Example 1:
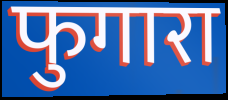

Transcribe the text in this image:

फुगारा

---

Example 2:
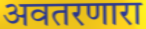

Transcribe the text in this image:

अवतरणारा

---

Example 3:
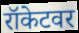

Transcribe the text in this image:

रॉकेटवर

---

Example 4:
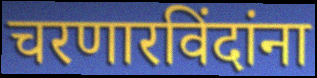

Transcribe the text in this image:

चरणारविंदांना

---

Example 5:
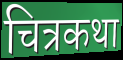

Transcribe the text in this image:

चित्रकथा